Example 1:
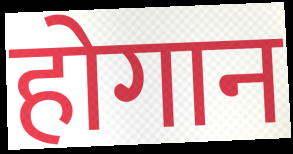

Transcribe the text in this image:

होगान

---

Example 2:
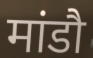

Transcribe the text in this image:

मांडौ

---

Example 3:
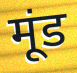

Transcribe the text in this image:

मूंड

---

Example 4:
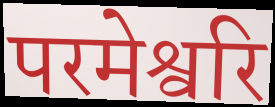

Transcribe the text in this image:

परमेश्वरि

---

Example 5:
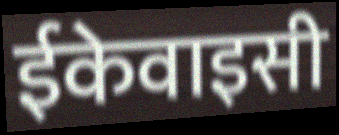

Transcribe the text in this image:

ईकेवाइसी